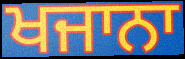
ਖਜਾਨਾ